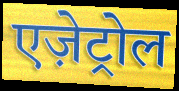
एज़ेट्रोल